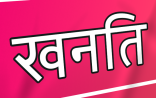
खनति